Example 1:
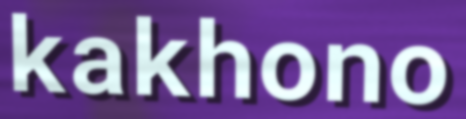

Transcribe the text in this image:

kakhono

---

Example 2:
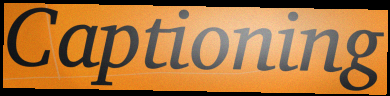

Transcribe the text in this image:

Captioning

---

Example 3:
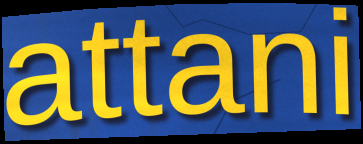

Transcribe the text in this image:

attani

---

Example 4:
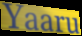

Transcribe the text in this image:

Yaaru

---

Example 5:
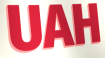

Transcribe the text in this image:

UAH